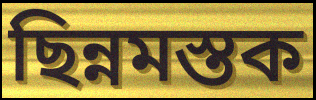
ছিন্নমস্তক